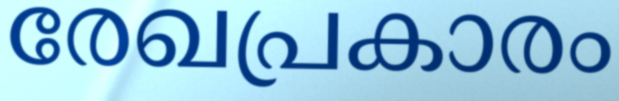
രേഖപ്രകാരം